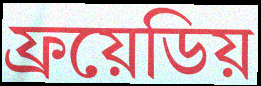
ফ্রয়েডিয়